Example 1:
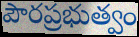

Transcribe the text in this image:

పౌరప్రభుత్వం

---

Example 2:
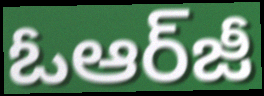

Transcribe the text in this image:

ఓఆర్‌జీ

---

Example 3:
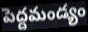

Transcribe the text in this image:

పెద్దమండ్యం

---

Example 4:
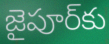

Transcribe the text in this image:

జైపూర్‌కు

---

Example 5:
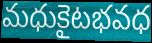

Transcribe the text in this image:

మధుకైటభవధ